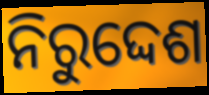
ନିରୁଦ୍ଦେଶ